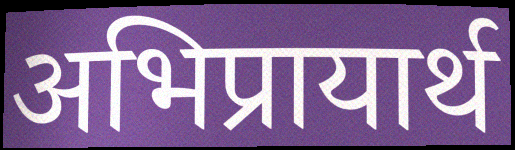
अभिप्रायार्थ